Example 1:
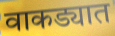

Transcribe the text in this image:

वाकड्यात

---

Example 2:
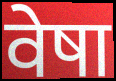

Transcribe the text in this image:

वेषा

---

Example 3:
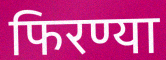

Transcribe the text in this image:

फिरण्या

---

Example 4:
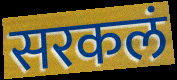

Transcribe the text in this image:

सरकलं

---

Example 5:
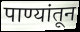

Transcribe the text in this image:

पाण्यांतून